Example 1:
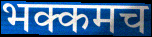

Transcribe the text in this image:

भक्कमच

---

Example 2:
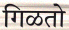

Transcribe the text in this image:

गिळतो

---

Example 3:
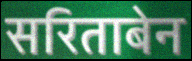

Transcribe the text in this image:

सरिताबेन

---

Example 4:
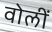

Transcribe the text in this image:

वोलीं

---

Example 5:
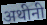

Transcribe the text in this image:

अथीनी